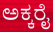
ಅಕ್ಕರೈ